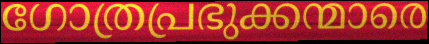
ഗോത്രപ്രഭുക്കന്മാരെ